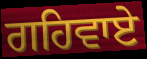
ਗਹਿਵਾਏ